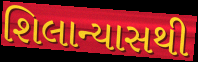
શિલાન્યાસથી